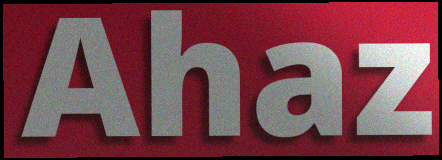
Ahaz